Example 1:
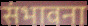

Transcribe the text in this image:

संभावना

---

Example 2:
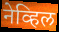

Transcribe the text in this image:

नेव्हिल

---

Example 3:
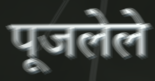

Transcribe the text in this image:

पूजलेले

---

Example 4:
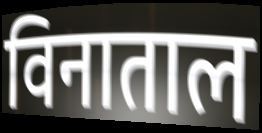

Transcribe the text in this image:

विनाताल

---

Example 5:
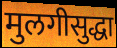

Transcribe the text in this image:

मुलगीसुद्धा